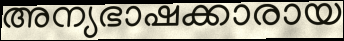
അന്യഭാഷക്കാരായ